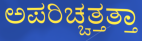
ಅಪರಿಚ್ಚತ್ತತ್ತಾ